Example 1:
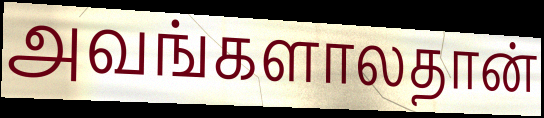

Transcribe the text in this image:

அவங்களாலதான்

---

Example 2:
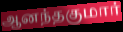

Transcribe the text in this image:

ஆனந்தகுமார்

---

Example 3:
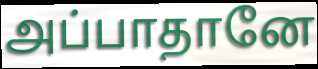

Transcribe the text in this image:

அப்பாதானே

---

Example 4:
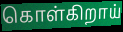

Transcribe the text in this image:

கொள்கிறாய்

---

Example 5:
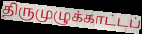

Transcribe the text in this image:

திருமுழுக்காட்டப்